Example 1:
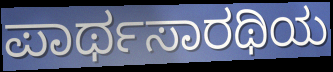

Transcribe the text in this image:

ಪಾರ್ಥಸಾರಥಿಯ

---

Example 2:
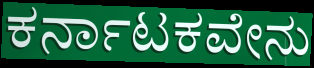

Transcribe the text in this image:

ಕರ್ನಾಟಕವೇನು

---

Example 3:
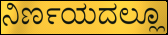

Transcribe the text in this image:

ನಿರ್ಣಯದಲ್ಲೂ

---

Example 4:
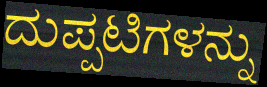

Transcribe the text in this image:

ದುಪ್ಪಟಿಗಳನ್ನು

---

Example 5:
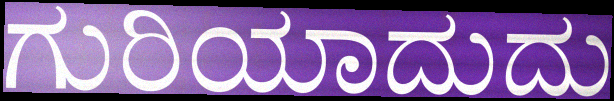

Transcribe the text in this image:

ಗುರಿಯಾದುದು